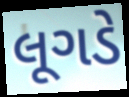
લૂગડે